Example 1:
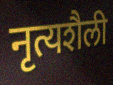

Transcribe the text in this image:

नृत्यशैली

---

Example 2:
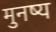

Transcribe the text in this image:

मुनष्य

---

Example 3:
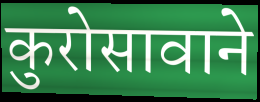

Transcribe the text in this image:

कुरोसावाने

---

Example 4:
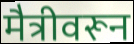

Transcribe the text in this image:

मैत्रीवरून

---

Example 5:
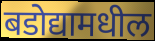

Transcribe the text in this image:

बडोद्यामधील